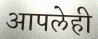
आपलेही